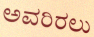
ಅವರಿರಲು